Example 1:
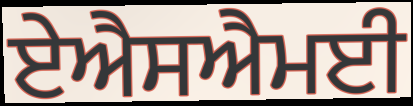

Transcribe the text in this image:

ਏਐਸਐਮਈ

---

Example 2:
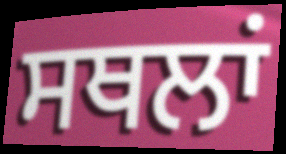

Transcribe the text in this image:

ਸਥਲਾਂ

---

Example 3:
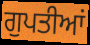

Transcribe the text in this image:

ਗੁਪਤੀਆਂ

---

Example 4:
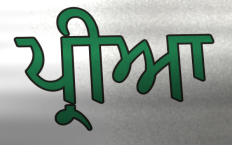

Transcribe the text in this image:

ਪ੍ਰੀਆ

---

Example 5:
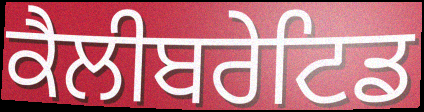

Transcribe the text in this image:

ਕੈਲੀਬਰੇਟਿਡ